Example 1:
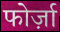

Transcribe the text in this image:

फोर्ज़ा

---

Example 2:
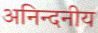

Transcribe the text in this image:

अनिन्दनीय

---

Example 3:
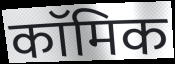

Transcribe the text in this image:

कॉमिक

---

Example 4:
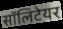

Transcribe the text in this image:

सॉलिटेयर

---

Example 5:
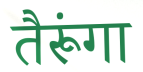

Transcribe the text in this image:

तैरूंगा